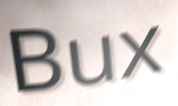
Bux